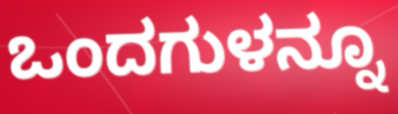
ಒಂದಗುಳನ್ನೂ